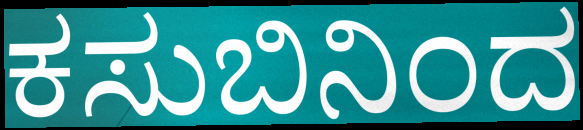
ಕಸುಬಿನಿಂದ